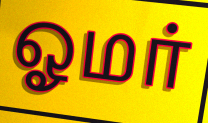
ஓமர்